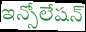
ఇన్సోలేషన్